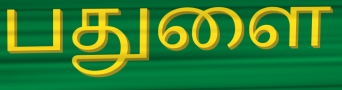
பதுளை